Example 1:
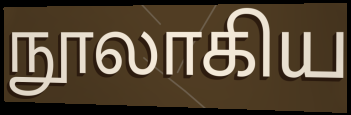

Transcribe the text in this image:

நூலாகிய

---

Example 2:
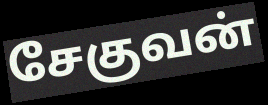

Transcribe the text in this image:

சேகுவன்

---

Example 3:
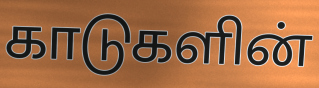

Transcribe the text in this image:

காடுகளின்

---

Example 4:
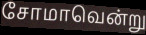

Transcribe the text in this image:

சோமாவென்று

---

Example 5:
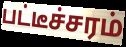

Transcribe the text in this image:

பட்டீச்சரம்